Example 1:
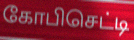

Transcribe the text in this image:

கோபிசெட்டி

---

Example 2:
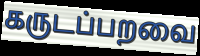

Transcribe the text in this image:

கருடப்பறவை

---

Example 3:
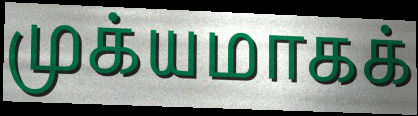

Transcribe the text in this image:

முக்யமாகக்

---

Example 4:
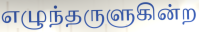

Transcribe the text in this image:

எழுந்தருளுகின்ற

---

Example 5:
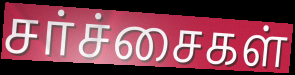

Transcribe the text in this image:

சர்ச்சைகள்